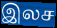
இலச